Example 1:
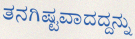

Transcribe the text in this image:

ತನಗಿಷ್ಟವಾದದ್ದನ್ನು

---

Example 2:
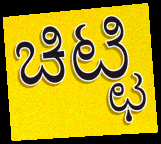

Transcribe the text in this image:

ಚಿಟ್ಟಿ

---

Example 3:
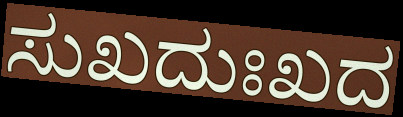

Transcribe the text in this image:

ಸುಖದುಃಖದ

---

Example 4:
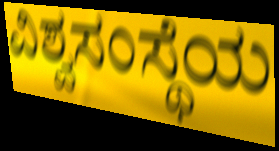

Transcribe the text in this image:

ವಿಶ್ವಸಂಸ್ಥೆಯ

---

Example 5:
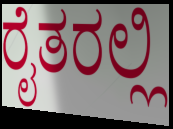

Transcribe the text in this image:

ರೈತರಲ್ಲಿ